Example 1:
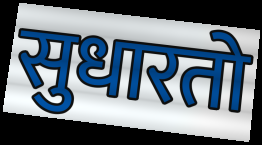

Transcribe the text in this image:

सुधारतो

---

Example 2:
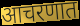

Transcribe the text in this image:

आचरणात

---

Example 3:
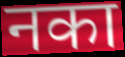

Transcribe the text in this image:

नका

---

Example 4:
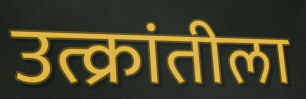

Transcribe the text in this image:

उत्क्रांतीला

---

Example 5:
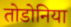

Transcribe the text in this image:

तोडोनिया